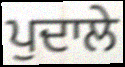
ਪੁਦਾਲੇ